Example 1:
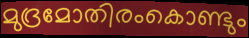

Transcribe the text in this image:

മുദ്രമോതിരംകൊണ്ടും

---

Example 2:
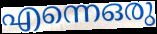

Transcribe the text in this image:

എന്നെഒരു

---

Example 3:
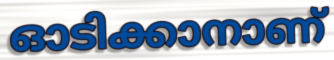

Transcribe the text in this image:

ഓടിക്കാനാണ്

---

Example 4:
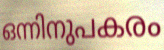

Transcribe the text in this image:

ഒന്നിനുപകരം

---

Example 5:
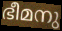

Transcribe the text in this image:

ഭീമനു